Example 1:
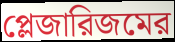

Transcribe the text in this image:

প্লেজারিজমের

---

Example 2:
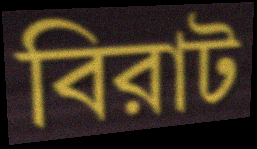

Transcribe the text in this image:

বিরাট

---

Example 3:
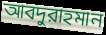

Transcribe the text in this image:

আবদুরাহমান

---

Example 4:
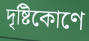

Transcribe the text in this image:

দৃষ্টিকোণে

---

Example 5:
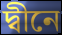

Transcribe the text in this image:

দ্বীনে